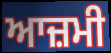
ਆਜ਼ਮੀ